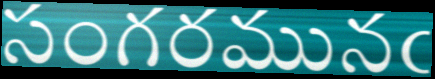
సంగరమునఁ